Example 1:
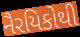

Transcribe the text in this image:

નૈરયિકોથી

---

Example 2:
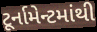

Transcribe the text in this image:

ટૂર્નામેન્ટમાંથી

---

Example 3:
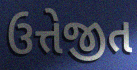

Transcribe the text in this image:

ઉત્તેજીત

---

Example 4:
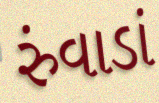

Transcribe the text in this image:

રુંવાડાં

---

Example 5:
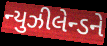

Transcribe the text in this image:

ન્યુઝીલેન્ડને